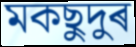
মকছুদুৰ